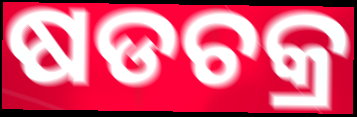
ଷଡଚକ୍ର